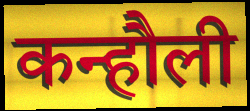
कन्हौली